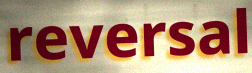
reversal